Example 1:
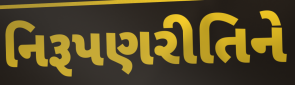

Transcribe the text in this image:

નિરૂપણરીતિને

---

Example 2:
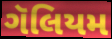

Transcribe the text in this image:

ગૅલિયમ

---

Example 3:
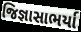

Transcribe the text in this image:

જિજ્ઞાસાભર્યા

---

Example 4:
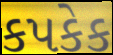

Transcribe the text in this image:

કપકેક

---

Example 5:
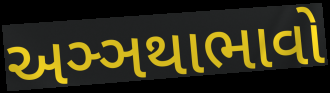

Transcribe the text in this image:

અઞ્ઞથાભાવો